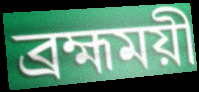
ব্রহ্মময়ী